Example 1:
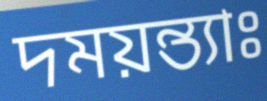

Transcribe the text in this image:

দময়ন্ত্যাঃ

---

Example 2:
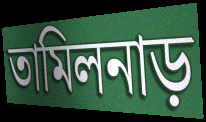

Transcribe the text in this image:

তামিলনাড়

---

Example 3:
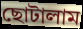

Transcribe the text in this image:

ছোটালাম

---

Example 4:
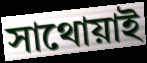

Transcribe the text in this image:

সাথোয়াই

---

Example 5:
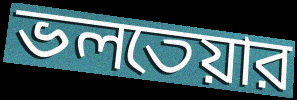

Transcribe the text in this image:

ভলতেয়ার